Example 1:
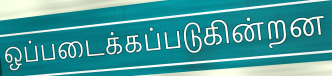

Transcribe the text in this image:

ஒப்படைக்கப்படுகின்றன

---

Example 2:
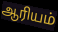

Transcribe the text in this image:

ஆரியம்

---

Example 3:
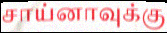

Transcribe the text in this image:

சாய்னாவுக்கு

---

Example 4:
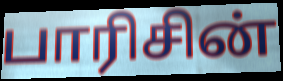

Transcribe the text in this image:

பாரிசின்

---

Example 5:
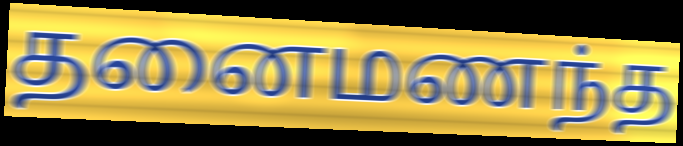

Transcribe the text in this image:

தனைமணந்த